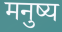
मनुष्य